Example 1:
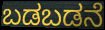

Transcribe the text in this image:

ಬಡಬಡನೆ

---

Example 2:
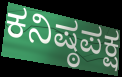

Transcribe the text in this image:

ಕನಿಷ್ಠಪಕ್ಷ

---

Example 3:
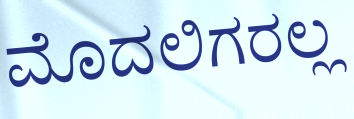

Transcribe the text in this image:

ಮೊದಲಿಗರಲ್ಲ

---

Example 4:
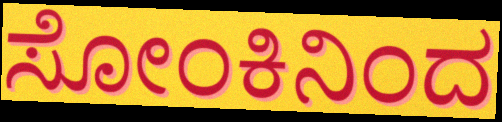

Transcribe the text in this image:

ಸೋಂಕಿನಿಂದ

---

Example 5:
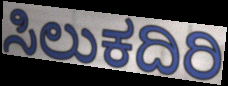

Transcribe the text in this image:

ಸಿಲುಕದಿರಿ